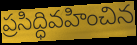
ప్రసిద్ధివహించిన